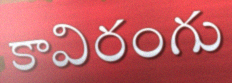
కావిరంగు